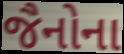
જૈનોના